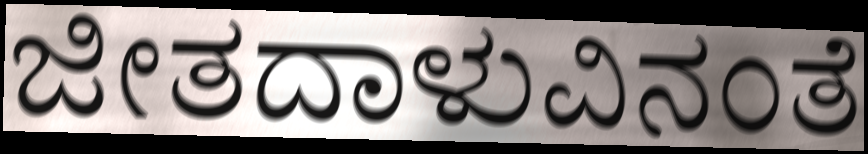
ಜೀತದಾಳುವಿನಂತೆ